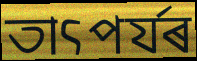
তাৎপৰ্যৰ